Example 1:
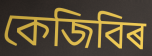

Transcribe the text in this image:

কেজিবিৰ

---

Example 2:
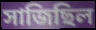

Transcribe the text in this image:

সাজিছিল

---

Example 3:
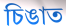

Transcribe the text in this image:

চিঙাত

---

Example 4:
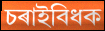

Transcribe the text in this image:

চৰাইবিধক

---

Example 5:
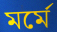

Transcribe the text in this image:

মৰ্মে